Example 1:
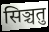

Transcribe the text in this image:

सिञ्चतु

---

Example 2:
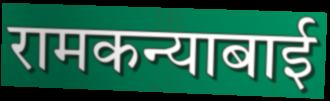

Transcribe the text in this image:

रामकन्याबाई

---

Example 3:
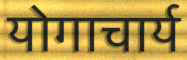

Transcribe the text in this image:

योगाचार्य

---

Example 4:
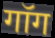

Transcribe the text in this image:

गॉग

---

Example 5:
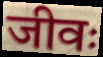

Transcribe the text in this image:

जीवः